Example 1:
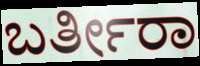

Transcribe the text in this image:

ಬರ್ತೀರಾ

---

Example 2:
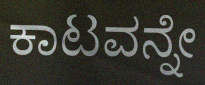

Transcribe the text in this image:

ಕಾಟವನ್ನೇ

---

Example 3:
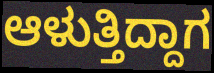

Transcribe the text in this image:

ಆಳುತ್ತಿದ್ದಾಗ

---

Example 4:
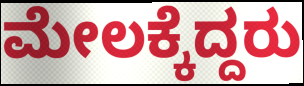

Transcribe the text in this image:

ಮೇಲಕ್ಕೆದ್ದರು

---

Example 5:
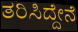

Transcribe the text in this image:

ತರಿಸಿದ್ದೇನೆ